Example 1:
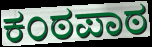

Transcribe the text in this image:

ಕಂಠಪಾಠ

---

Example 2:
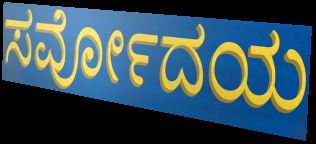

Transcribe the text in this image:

ಸರ್ವೋದಯ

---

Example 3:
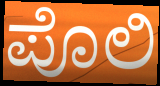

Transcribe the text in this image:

ಪೊಲಿ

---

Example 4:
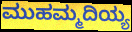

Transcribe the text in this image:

ಮುಹಮ್ಮದಿಯ್ಯ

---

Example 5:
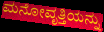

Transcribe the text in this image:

ಮನೋವೃತ್ತಿಯನ್ನು